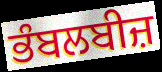
ਭੰਬਲਬੀਜ਼